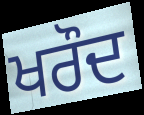
ਖਰੌਦ